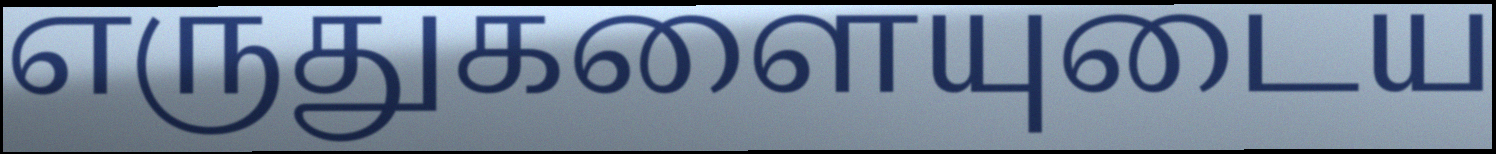
எருதுகளையுடைய